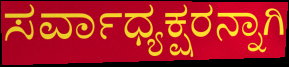
ಸರ್ವಾಧ್ಯಕ್ಷರನ್ನಾಗಿ